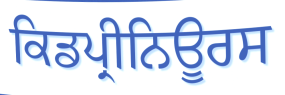
ਕਿਡਪ੍ਰੀਨਿਊਰਸ